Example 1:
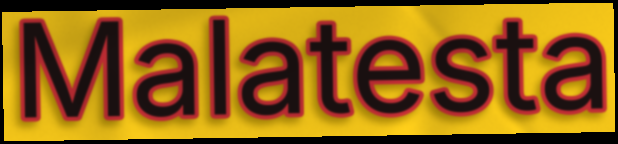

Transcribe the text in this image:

Malatesta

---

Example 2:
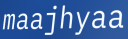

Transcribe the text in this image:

maajhyaa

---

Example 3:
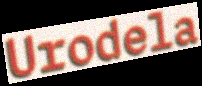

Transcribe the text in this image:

Urodela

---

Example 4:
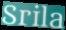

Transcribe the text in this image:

Srila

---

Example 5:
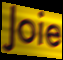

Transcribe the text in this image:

Joie